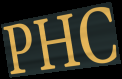
PHC